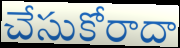
చేసుకోరాదా